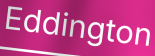
Eddington